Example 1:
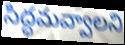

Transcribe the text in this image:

సిద్ధమవ్వాలని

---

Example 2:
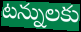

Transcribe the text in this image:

టన్నులకు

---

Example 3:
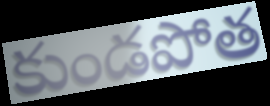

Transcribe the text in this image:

కుండపోత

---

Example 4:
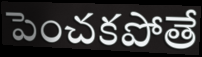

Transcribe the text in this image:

పెంచకపోతే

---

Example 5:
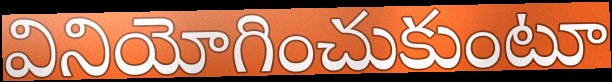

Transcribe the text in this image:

వినియోగించుకుంటూ